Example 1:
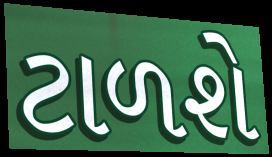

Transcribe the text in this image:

ટાળશે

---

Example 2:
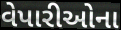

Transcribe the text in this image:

વેપારીઓના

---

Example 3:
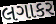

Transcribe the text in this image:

લગાકર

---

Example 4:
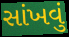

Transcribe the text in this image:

સાંખવું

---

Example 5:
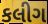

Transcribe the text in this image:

કલીગ